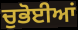
ਚੁਭੋਈਆਂ